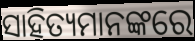
ସାହିତ୍ୟମାନଙ୍କରେ